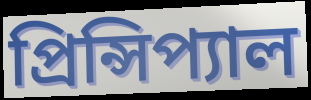
প্রিন্সিপ্যাল